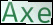
Axe